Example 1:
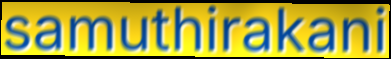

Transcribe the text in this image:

samuthirakani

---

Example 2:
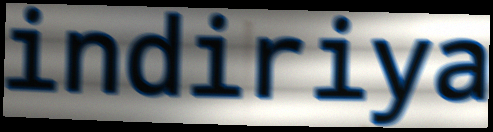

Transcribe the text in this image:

indiriya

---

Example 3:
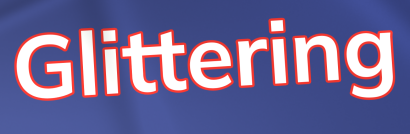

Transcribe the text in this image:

Glittering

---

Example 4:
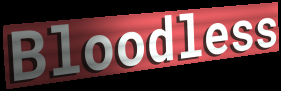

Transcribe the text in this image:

Bloodless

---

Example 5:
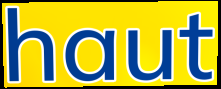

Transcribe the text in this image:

haut